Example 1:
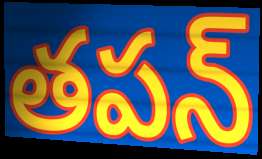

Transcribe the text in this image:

తపన్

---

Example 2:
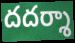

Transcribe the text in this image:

దదర్శా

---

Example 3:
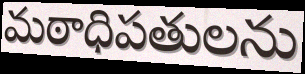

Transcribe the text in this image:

మఠాధిపతులను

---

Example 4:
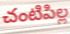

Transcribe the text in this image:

చంటిపిల్ల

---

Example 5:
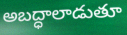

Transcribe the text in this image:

అబద్ధాలాడుతూ